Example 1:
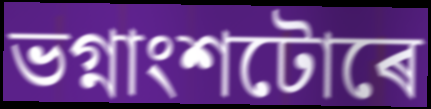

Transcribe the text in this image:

ভগ্নাংশটোৰে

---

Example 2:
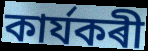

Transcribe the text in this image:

কাৰ্যকৰী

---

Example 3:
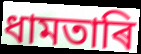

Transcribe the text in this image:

ধামতাৰি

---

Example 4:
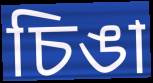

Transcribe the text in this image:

চিঙা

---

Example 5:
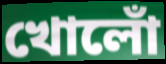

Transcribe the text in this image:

খোলোঁ